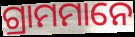
ଗ୍ରାମମାନେ